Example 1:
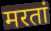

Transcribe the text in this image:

मरतां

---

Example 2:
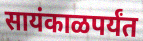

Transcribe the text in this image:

सायंकाळपर्यंत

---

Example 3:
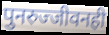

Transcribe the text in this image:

पुनरुज्जीवनही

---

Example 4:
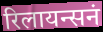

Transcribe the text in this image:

रिलायन्सनं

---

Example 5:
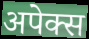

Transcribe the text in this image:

अपेक्स